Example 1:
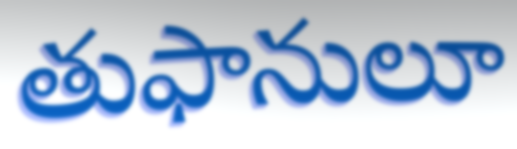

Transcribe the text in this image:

తుఫానులూ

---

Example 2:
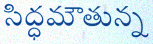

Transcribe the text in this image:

సిద్ధమౌతున్న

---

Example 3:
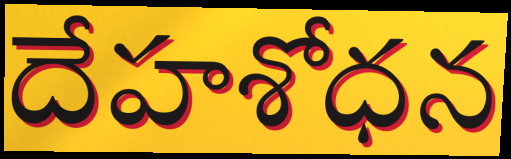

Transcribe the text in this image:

దేహశోధన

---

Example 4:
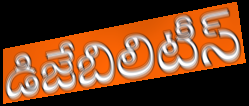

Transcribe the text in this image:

డిజేబిలిటీస్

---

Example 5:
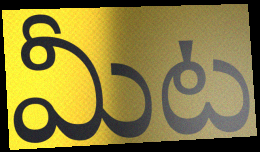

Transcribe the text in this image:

మీట